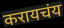
करायचंय